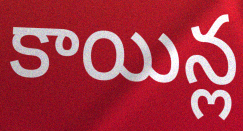
కాయిన్ల